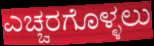
ಎಚ್ಚರಗೊಳ್ಳಲು